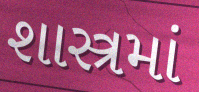
શાસ્ત્રમાં